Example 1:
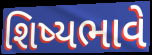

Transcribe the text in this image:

શિષ્યભાવે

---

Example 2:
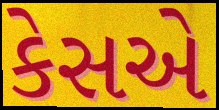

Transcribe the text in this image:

કેસએ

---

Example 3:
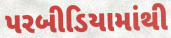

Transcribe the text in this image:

પરબીડિયામાંથી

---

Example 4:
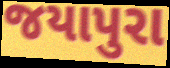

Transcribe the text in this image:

જયાપુરા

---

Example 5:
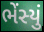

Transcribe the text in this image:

ભેંસ્યું